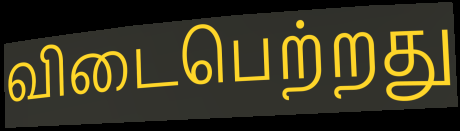
விடைபெற்றது